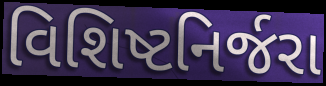
વિશિષ્ટનિર્જરા